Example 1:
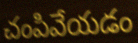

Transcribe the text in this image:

చంపివేయడం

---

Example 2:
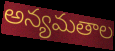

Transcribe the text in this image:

అన్యమతాల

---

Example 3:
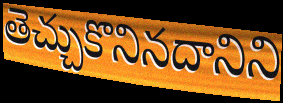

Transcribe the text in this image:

తెచ్చుకొనినదానిని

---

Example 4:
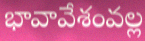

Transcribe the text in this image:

భావావేశంవల్ల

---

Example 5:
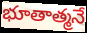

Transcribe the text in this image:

భూతాత్మనే